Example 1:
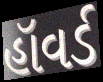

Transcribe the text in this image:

હૉવર્ડ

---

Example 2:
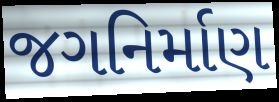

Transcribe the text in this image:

જગનિર્માણ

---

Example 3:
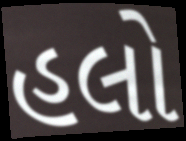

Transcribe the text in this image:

હલો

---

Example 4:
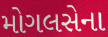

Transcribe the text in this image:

મોગલસેના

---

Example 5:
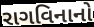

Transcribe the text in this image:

રાગવિનાનો